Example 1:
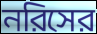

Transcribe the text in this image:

নরিসের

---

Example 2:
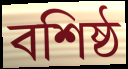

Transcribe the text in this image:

বশিষ্ঠ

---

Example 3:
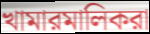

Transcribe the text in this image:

খামারমালিকরা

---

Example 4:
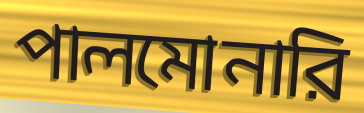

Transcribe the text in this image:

পালমোনারি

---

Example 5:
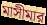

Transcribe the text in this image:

মাসীমার